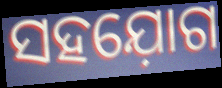
ସହଯ଼ୋଗ